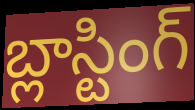
బ్లాస్టింగ్